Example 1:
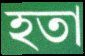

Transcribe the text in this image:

হতা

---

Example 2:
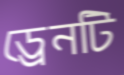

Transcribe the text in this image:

ড্রেনটি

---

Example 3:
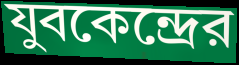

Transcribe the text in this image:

যুবকেন্দ্রের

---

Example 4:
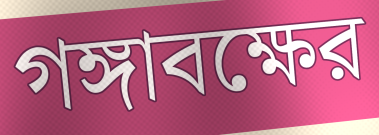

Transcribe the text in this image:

গঙ্গাবক্ষের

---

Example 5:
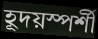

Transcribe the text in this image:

হূদয়স্পর্শী